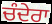
ਚੰਦੇਰਾ